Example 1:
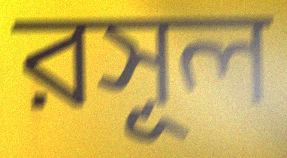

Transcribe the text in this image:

রসূল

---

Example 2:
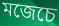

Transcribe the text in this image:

মজেচে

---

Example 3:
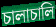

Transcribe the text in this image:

চালাচালি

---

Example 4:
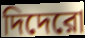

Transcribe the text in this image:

দিদেরো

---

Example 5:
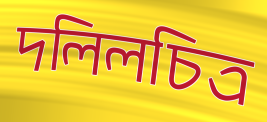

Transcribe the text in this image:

দলিলচিত্র